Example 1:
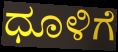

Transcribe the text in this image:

ಧೂಳಿಗೆ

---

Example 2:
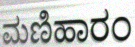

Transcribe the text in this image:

ಮಣಿಹಾರಂ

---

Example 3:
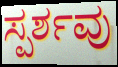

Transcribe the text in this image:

ಸ್ಪರ್ಶವು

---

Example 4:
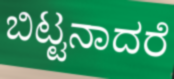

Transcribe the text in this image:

ಬಿಟ್ಟನಾದರೆ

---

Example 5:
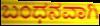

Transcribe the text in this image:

ಬಂಧನವಾಗಿ